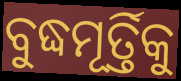
ବୁଦ୍ଧମୂର୍ତ୍ତିକୁ